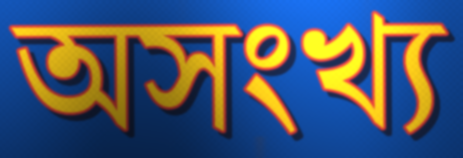
অসংখ্য